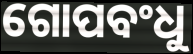
ଗୋପବଂଧୁ